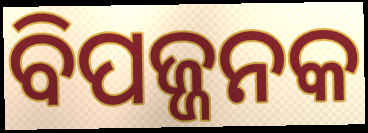
ବିପଜ୍ଜନକ